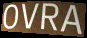
OVRA